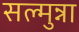
सल्मुन्ना